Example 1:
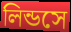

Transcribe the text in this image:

লিন্ডসে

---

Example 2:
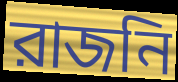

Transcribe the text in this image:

রাজনি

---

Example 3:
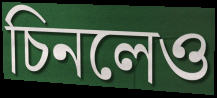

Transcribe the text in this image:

চিনলেও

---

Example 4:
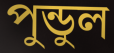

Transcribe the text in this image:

পুন্ডুল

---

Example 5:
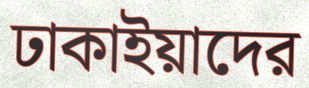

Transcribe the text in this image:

ঢাকাইয়াদের